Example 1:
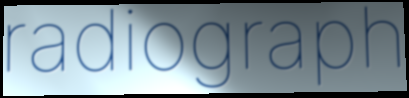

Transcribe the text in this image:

radiograph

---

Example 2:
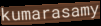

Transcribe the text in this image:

kumarasamy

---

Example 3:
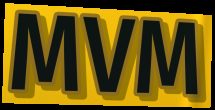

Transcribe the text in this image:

MVM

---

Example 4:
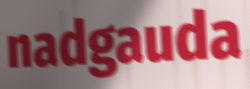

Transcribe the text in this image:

nadgauda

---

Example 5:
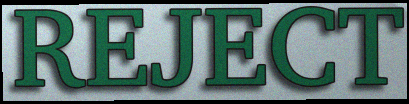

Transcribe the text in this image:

REJECT